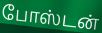
போஸ்டன்